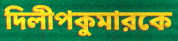
দিলীপকুমারকে